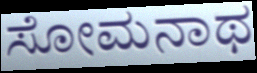
ಸೋಮನಾಥ